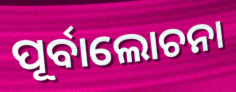
ପୂର୍ବାଲୋଚନା